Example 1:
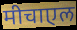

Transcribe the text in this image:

मीचाएल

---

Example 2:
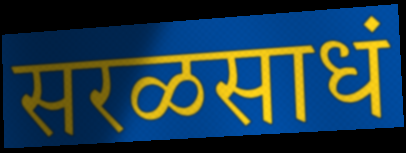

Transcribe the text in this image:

सरळसाधं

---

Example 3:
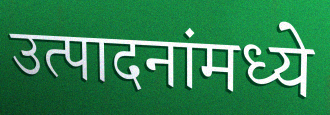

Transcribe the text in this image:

उत्पादनांमध्ये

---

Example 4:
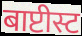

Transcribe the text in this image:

बाप्टीस्ट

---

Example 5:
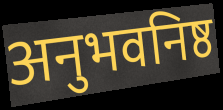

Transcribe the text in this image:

अनुभवनिष्ठ